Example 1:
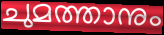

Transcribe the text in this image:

ചുമത്താനും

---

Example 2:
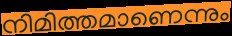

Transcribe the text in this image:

നിമിത്തമാണെന്നും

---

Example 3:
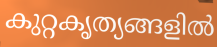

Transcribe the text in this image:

കുറ്റകൃത്യങ്ങളിൽ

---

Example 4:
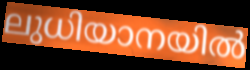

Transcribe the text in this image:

ലുധിയാനയിൽ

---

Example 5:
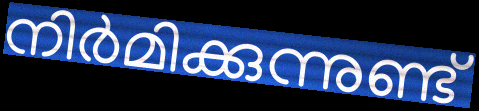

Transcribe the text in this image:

നിർമിക്കുന്നുണ്ട്